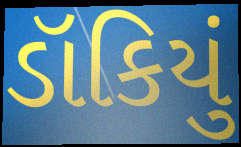
ડૉકિયું